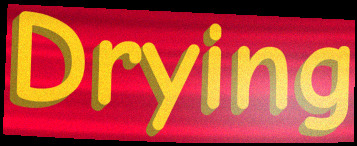
Drying